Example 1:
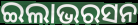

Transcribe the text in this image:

ଇଲାଭରସନ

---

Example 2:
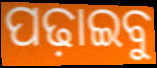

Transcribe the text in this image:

ପଢ଼ାଇବୁ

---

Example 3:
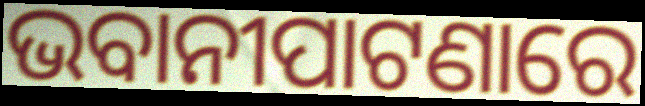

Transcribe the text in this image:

ଭବାନୀପାଟଣାରେ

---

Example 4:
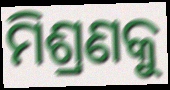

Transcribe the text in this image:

ମିଶ୍ରଣକୁ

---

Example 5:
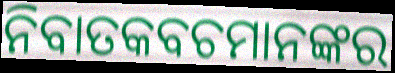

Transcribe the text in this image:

ନିବାତକବଚମାନଙ୍କର